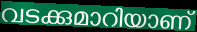
വടക്കുമാറിയാണ്